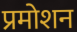
प्रमोशन